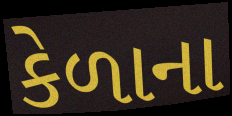
કેળાના